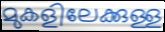
മുകളിലേക്കുള്ള